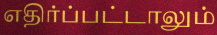
எதிர்ப்பட்டாலும்